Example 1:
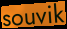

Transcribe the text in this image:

souvik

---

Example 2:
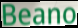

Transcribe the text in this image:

Beano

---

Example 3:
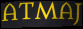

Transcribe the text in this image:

ATMAJ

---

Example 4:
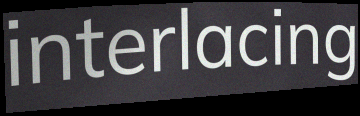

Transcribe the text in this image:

interlacing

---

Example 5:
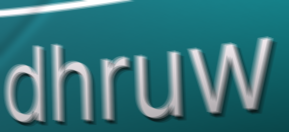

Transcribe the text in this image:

dhruw